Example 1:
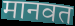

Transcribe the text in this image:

मानवत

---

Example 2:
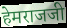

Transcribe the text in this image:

हेमराजजी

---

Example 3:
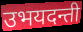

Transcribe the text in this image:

उभयदन्ती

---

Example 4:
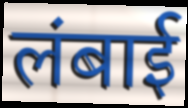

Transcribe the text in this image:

लंबाई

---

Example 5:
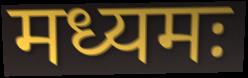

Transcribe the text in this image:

मध्यमः